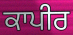
ਕਾਪੀਰ